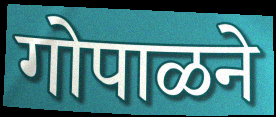
गोपाळने